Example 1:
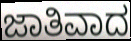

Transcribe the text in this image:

ಜಾತಿವಾದ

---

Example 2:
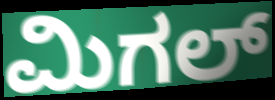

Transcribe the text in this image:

ಮಿಗಲ್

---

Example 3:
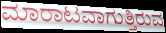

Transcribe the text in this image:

ಮಾರಾಟವಾಗುತ್ತಿರುವ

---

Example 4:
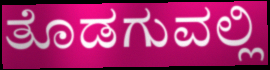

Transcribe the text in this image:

ತೊಡಗುವಲ್ಲಿ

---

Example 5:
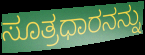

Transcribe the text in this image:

ಸೂತ್ರಧಾರನನ್ನು